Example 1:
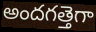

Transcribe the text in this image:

అందగత్తెగా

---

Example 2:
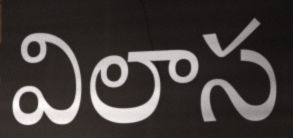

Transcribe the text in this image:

విలాస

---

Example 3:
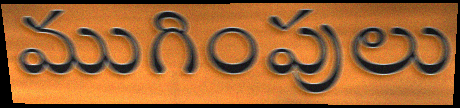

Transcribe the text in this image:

ముగింపులు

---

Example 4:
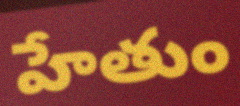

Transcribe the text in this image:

హేతుం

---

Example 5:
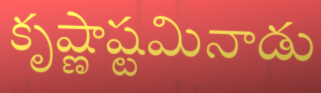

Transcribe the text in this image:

కృష్ణాష్టమినాడు